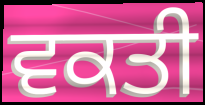
ਵਕਤੀ